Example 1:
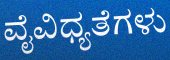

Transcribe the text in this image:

ವೈವಿಧ್ಯತೆಗಳು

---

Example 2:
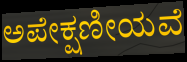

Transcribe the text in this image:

ಅಪೇಕ್ಷಣೀಯವೆ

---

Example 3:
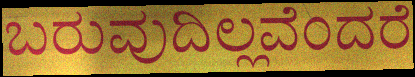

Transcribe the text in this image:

ಬರುವುದಿಲ್ಲವೆಂದರೆ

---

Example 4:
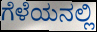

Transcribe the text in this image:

ಗೆಳೆಯನಲ್ಲಿ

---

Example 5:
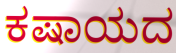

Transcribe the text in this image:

ಕಷಾಯದ